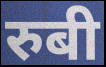
रुबी